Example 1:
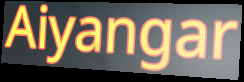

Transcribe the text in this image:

Aiyangar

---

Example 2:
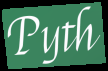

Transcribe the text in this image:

Pyth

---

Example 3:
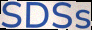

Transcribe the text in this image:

SDSs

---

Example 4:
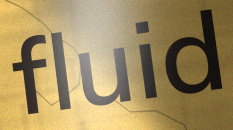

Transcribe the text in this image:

fluid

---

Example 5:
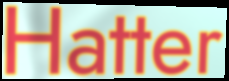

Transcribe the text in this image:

Hatter